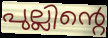
പുല്ലിന്റെ